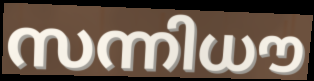
സന്നിധൗ